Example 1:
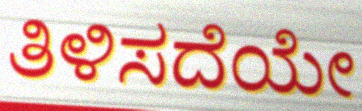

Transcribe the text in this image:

ತಿಳಿಸದೆಯೇ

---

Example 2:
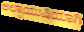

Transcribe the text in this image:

ಅಲ್ಪಾಯುಷಿಯಾಗಿ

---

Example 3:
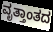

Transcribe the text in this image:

ವೃತ್ತಾಂತದ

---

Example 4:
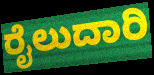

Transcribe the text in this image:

ರೈಲುದಾರಿ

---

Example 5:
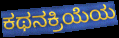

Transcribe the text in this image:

ಕಥನಕ್ರಿಯೆಯ